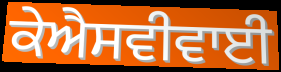
ਕੇਐਸਵੀਵਾਈ